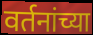
वर्तनांच्या